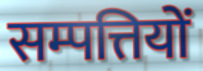
सम्‍पत्तियों